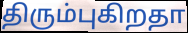
திரும்புகிறதா